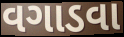
વગાડવા